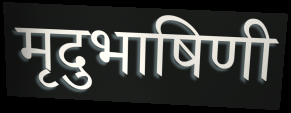
मृदुभाषिणी